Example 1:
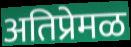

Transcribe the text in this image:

अतिप्रेमळ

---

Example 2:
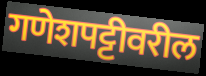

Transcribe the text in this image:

गणेशपट्टीवरील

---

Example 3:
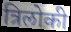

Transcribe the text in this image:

त्रिलोकी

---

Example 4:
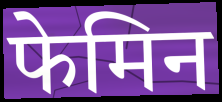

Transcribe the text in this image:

फेमिन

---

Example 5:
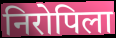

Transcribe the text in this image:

निरोपिला